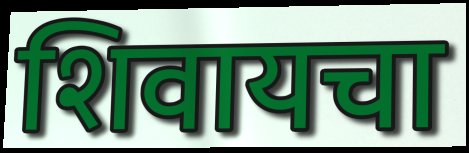
शिवायचा